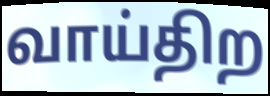
வாய்திற